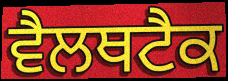
ਵੈਲਥਟੈਕ